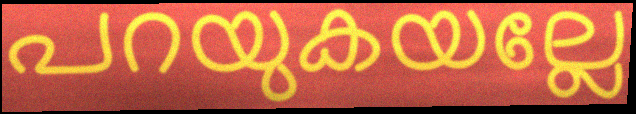
പറയുകയല്ലേ